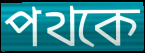
পথকে